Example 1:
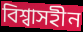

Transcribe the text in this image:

বিশ্বাসহীন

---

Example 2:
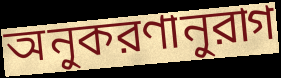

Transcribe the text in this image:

অনুকরণানুরাগ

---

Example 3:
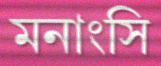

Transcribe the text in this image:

মনাংসি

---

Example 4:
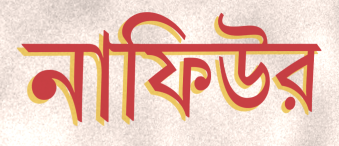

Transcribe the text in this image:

নাফিউর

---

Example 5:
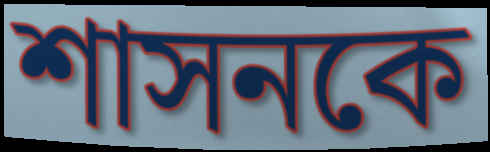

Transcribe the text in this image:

শাসনকে